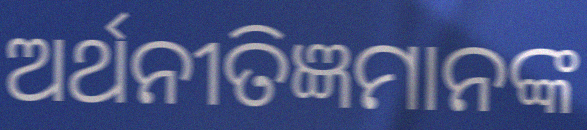
ଅର୍ଥନୀତିଜ୍ଞମାନଙ୍କ